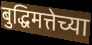
बुद्धिमत्तेच्या